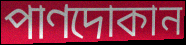
পাণদোকান